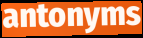
antonyms